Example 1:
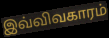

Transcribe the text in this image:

இவ்விவகாரம்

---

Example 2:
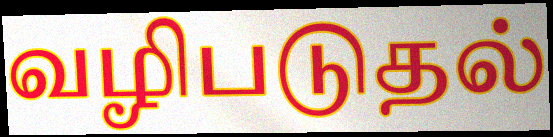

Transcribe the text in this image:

வழிபடுதல்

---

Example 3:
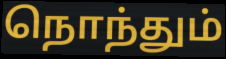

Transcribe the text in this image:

நொந்தும்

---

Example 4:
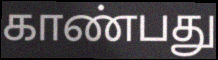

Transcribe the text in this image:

காண்பது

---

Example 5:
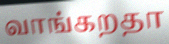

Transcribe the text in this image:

வாங்கறதா